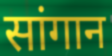
सांगान